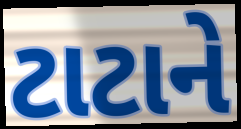
ટાટાને